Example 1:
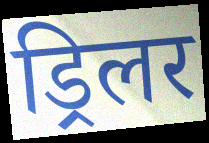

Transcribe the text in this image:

ड्रिलर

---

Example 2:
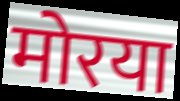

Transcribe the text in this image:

मोरया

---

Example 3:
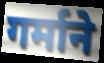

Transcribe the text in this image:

गर्माने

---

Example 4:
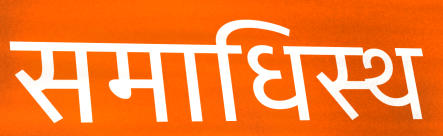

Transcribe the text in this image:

समाधिस्थ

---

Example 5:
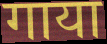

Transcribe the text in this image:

गाया